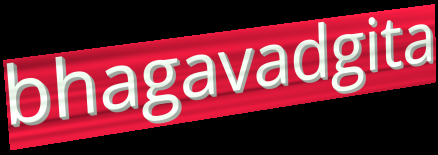
bhagavadgita